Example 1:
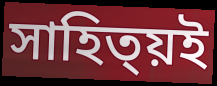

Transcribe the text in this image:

সাহিত্য়ই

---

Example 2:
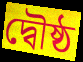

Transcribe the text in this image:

দ্বৌষ্ঠ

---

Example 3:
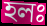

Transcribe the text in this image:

হলঃ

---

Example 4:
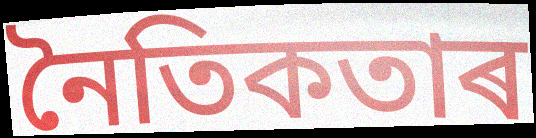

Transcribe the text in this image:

নৈতিকতাৰ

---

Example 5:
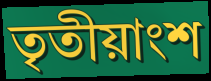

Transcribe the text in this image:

তৃতীয়াংশ